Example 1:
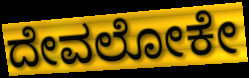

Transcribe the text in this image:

ದೇವಲೋಕೇ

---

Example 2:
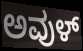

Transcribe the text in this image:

ಅವುಳ್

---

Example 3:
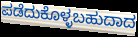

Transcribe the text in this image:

ಪಡೆದುಕೊಳ್ಳಬಹುದಾದ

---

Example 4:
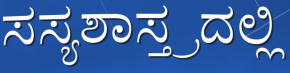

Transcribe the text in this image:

ಸಸ್ಯಶಾಸ್ತ್ರದಲ್ಲಿ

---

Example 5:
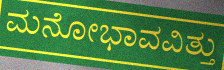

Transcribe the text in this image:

ಮನೋಭಾವವಿತ್ತು